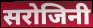
सरोजिनी